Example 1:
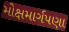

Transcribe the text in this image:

મોક્ષમાર્ગપણા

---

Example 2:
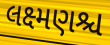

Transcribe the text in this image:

લક્ષ્મણશ્ચ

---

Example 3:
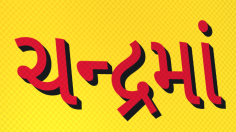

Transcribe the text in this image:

ચન્દ્રમાં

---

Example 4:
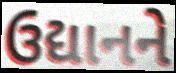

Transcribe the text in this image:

ઉદ્યાનને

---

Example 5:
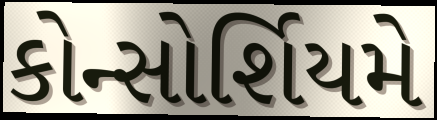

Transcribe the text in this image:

કોન્સોર્શિયમે